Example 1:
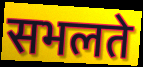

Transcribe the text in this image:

सभलते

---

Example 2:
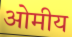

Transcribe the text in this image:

ओमीय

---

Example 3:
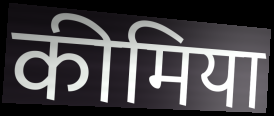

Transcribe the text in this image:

कीमिया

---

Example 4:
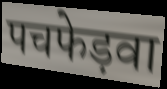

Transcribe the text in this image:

पचफेड़वा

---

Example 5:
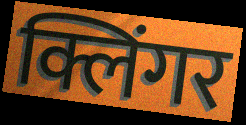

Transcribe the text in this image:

क्लिंगर